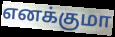
எனக்குமா